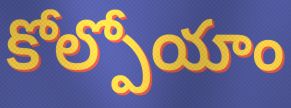
కోల్పోయాం